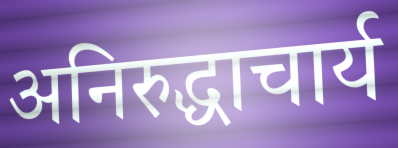
अनिरुद्धाचार्य